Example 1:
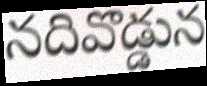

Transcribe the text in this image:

నదివొడ్డున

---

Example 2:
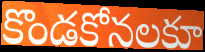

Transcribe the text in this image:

కొండకోనలకూ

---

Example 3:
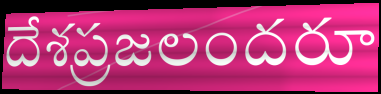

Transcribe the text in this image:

దేశప్రజలందరూ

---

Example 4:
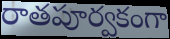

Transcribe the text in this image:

రాతపూర్వకంగా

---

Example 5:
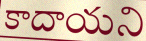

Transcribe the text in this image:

కాదాయని